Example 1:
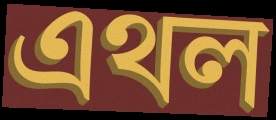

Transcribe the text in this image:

এথল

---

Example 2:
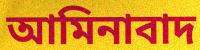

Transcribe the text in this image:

আমিনাবাদ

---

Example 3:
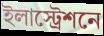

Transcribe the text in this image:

ইলাস্ট্রেশনে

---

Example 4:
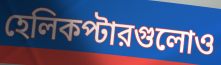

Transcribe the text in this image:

হেলিকপ্টারগুলোও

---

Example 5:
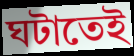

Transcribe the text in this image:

ঘটাতেই